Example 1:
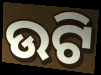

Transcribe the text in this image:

ଉଟି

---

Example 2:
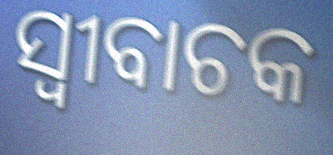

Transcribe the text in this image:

ସ୍ବୀବାଚକ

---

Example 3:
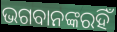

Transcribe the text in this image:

ଭଗବାନଙ୍କରହିଁ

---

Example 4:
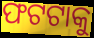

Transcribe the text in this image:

ଫଟଟାକୁ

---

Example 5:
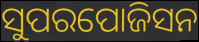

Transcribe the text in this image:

ସୁପରପୋଜିସନ